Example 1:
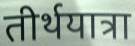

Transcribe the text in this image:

तीर्थयात्रा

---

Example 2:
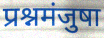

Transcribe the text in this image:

प्रश्नमंजुषा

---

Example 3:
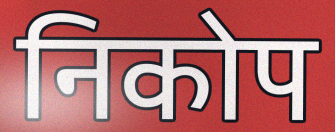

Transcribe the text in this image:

निकोप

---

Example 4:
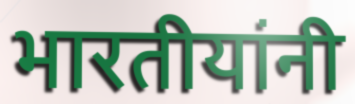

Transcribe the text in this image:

भारतीयांनी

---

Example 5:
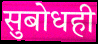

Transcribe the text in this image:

सुबोधही